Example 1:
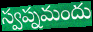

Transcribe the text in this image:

స్వప్నమందు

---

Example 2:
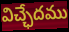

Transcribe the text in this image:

విచ్ఛేదము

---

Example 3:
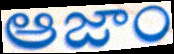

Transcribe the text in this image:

ఆజాం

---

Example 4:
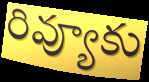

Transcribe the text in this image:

రివ్యూకు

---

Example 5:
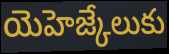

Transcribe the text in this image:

యెహెజ్కేలుకు